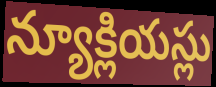
న్యూక్లియస్లు